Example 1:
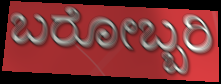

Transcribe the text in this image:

ಬರೋಬ್ಬರಿ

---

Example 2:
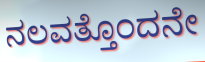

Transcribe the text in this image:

ನಲವತ್ತೊಂದನೇ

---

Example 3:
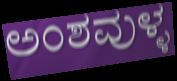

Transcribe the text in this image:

ಅಂಶವುಳ್ಳ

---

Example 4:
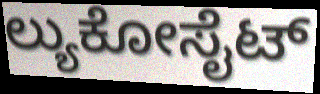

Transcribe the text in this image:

ಲ್ಯುಕೋಸೈಟ್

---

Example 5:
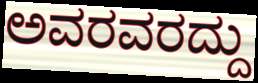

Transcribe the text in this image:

ಅವರವರದ್ದು